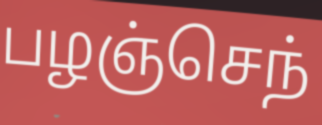
பழஞ்செந்